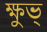
ক্ষুভ্